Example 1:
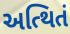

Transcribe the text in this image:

અત્થિતં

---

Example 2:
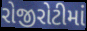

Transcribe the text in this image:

રોજીરોટીમાં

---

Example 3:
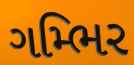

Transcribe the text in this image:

ગમ્ભિર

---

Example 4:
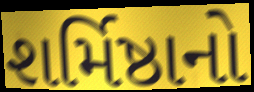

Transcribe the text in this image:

શર્મિષ્ઠાનો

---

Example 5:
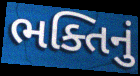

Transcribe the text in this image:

ભક્તિનું